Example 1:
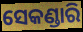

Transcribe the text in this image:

ସେକଣ୍ଡାରି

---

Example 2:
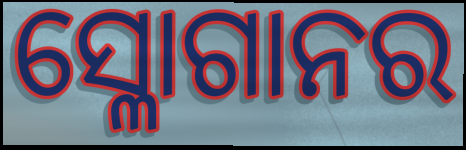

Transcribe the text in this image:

ସ୍ଳୋଗାନର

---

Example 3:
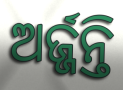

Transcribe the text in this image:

ଅର୍ଜ୍ଜନ୍ତି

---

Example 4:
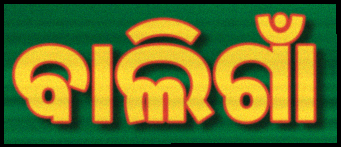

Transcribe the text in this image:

ବାଲିଗାଁ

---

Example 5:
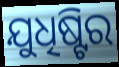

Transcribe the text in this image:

ଯୁଧିଷ୍ଟିର